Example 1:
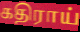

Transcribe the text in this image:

கதிராய்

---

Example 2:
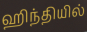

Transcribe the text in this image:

ஹிந்தியில்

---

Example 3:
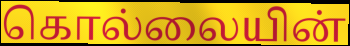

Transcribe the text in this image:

கொல்லையின்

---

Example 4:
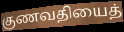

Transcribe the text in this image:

குணவதியைத்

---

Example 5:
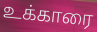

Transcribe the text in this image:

உக்காரை